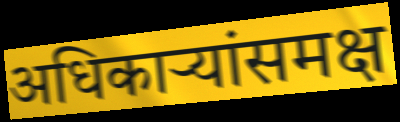
अधिकाऱ्यांसमक्ष